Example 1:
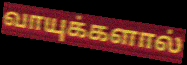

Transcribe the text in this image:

வாயுக்களால்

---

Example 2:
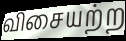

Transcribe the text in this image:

விசையற்ற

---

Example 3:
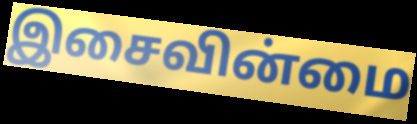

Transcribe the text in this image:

இசைவின்மை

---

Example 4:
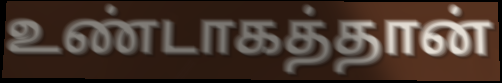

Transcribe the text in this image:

உண்டாகத்தான்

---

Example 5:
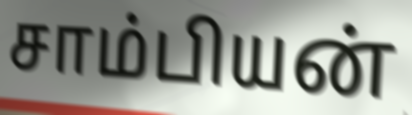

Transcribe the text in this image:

சாம்பியன்